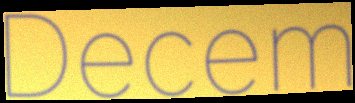
Decem